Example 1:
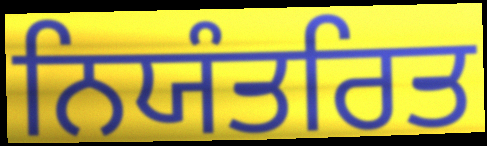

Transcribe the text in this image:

ਨਿਯੰਤਰਿਤ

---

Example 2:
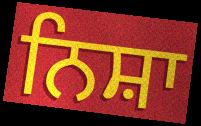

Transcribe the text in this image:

ਨਿਸ਼ਾ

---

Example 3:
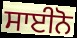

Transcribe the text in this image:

ਸਾਈਨੋ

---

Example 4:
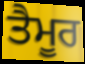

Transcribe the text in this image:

ਤੈਮੂਰ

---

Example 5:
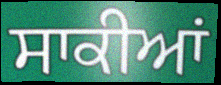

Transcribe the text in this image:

ਸਾਕੀਆਂ